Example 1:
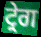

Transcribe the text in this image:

ਟ੍ਰੇਗ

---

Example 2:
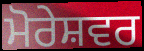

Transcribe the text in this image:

ਮੋਰੇਸ਼ਵਰ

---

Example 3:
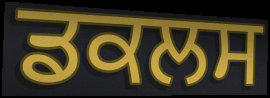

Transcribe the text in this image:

ਡਕਲਸ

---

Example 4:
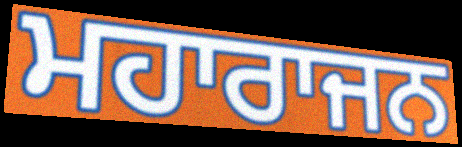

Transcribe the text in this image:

ਮਹਾਰਾਜਨ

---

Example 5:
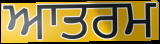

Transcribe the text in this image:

ਆਤਰਮ